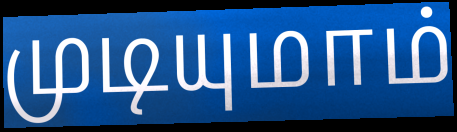
முடியுமாம்